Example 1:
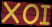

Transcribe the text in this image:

XOI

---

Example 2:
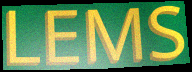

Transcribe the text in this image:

LEMS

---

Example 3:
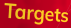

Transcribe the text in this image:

Targets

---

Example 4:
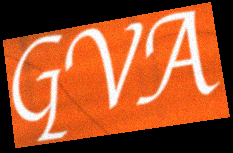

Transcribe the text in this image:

GVA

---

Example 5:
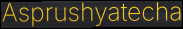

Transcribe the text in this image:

Asprushyatecha